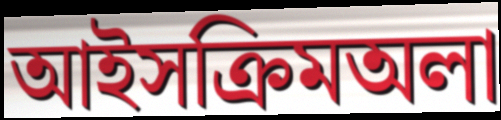
আইসক্রিমঅলা